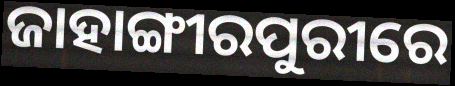
ଜାହାଙ୍ଗୀରପୁରୀରେ